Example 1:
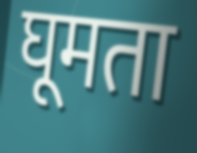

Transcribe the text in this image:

घूमता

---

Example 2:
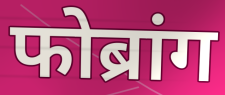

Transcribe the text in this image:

फोब्रांग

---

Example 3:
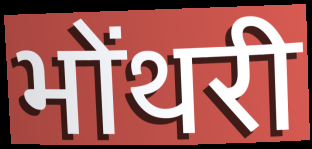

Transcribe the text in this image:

भोंथरी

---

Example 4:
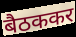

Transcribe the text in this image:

बैठककर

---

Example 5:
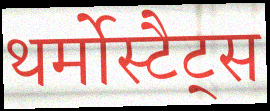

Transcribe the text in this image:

थर्मोस्टैट्स